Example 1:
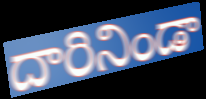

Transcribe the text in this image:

దారినిండా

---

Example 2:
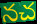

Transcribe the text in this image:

నచ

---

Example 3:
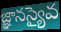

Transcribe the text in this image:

జ్ఞానస్యైవ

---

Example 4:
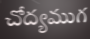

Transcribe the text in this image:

చోద్యముగ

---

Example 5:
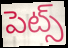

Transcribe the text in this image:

పెట్స్